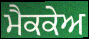
ਮੈਕਕੇਅ